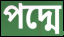
পদ্মে